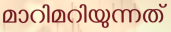
മാറിമറിയുന്നത്